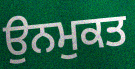
ਉਨਮੁਕਤ